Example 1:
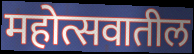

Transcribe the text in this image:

महोत्सवातील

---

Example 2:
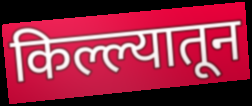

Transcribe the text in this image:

किल्ल्यातून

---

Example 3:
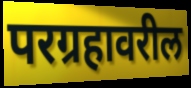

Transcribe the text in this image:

परग्रहावरील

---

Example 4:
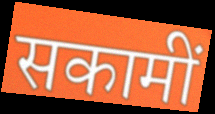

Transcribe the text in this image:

सकामीं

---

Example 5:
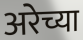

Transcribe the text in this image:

अरेच्या